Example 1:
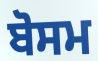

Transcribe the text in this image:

ਬੋਸਮ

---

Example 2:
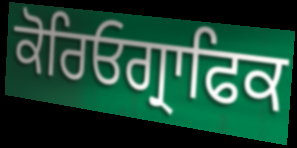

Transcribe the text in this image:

ਕੋਰਿਓਗ੍ਰਾਫਿਕ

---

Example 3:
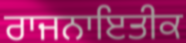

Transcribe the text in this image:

ਰਾਜਨਾਇਤੀਕ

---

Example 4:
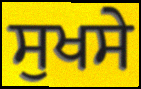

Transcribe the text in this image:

ਸੁਖਸੇ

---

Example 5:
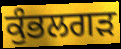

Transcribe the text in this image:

ਕੁੰਭਲਗੜ